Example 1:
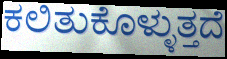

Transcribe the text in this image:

ಕಲಿತುಕೊಳ್ಳುತ್ತದೆ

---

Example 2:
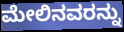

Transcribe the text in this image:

ಮೇಲಿನವರನ್ನು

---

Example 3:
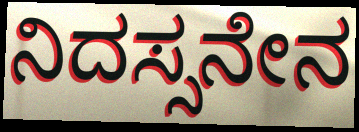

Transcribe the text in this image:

ನಿದಸ್ಸನೇನ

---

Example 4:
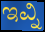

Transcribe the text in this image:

ಇವ್ನಿ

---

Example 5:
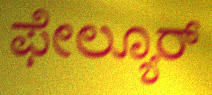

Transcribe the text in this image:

ಫೇಲ್ಯೂರ್